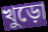
খুড়ো